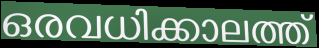
ഒരവധിക്കാലത്ത്